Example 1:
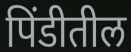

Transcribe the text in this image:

पिंडीतील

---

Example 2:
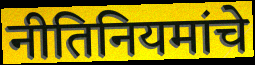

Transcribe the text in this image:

नीतिनियमांचे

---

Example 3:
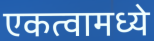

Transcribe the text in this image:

एकत्वामध्ये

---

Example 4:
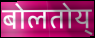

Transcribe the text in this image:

बोलतोय्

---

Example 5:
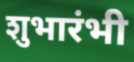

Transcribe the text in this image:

शुभारंभी